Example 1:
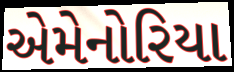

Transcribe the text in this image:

એમેનોરિયા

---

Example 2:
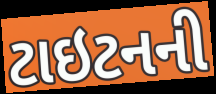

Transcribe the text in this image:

ટાઇટનની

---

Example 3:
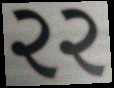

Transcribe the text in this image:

રર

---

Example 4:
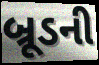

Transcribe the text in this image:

બ્રૂડની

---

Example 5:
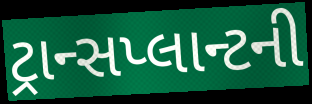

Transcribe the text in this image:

ટ્રાન્સપ્લાન્ટની